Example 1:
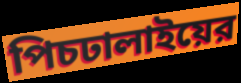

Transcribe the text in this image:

পিচঢালাইয়ের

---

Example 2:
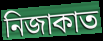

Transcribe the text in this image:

নিজাকাত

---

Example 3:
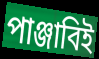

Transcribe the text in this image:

পাঞ্জাবিই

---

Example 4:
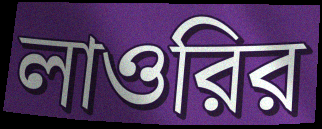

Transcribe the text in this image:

লাওরির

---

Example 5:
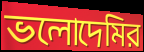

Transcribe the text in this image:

ভলোদেমির